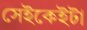
সেইকেইটা